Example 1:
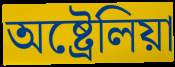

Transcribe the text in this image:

অষ্ট্ৰেলিয়া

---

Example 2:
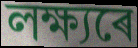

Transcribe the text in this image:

লক্ষ্যৰে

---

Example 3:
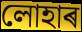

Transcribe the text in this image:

লোহাৰ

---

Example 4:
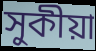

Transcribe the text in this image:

সুকীয়া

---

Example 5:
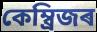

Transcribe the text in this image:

কেম্ব্ৰিজৰ